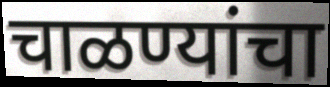
चाळण्यांचा